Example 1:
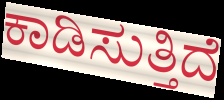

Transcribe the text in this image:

ಕಾಡಿಸುತ್ತಿದೆ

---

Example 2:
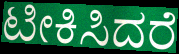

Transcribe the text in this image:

ಟೀಕಿಸಿದರೆ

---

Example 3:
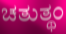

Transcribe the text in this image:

ಚತುತ್ಥಂ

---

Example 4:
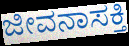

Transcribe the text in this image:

ಜೀವನಾಸಕ್ತಿ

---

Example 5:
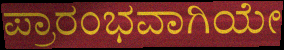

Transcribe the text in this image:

ಪ್ರಾರಂಭವಾಗಿಯೇ